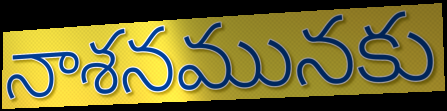
నాశనమునకు